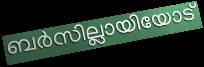
ബർസില്ലായിയോട്